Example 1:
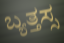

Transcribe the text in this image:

ಬ್ಯತ್ತಸ್ಸ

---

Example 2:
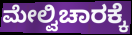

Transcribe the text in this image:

ಮೇಲ್ವಿಚಾರಕ್ಕೆ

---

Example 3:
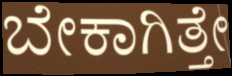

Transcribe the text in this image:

ಬೇಕಾಗಿತ್ತೇ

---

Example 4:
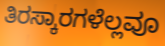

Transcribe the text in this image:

ತಿರಸ್ಕಾರಗಳೆಲ್ಲವೂ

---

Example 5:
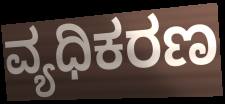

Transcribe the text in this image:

ವ್ಯಧಿಕರಣ